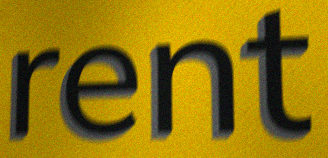
rent